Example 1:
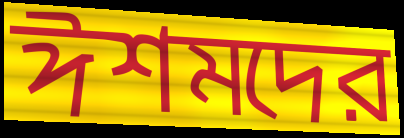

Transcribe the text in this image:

ঈশমদের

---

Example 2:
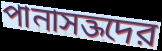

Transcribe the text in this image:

পানাসক্তদের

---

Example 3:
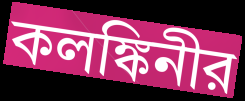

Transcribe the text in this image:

কলঙ্কিনীর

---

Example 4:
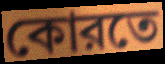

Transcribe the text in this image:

কোরতে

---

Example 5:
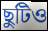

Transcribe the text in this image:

ছুটিও